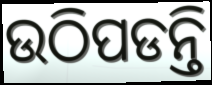
ଉଠିପଡନ୍ତି